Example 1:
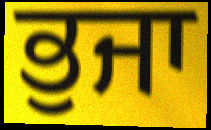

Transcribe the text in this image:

ਭੁਜਾ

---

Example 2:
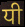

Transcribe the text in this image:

ਧੀ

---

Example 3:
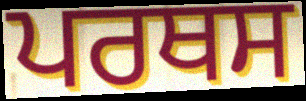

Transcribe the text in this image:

ਪਰਥਸ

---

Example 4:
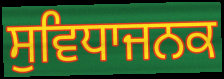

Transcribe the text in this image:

ਸੁਵਿਧਾਜਨਕ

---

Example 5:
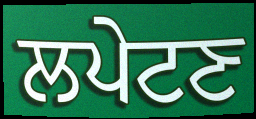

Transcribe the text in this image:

ਲਪੇਟਣ